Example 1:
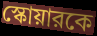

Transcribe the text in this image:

স্কোয়ারকে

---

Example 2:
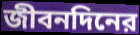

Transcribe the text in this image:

জীবনদিনের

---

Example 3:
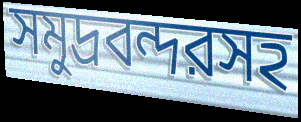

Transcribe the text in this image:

সমুদ্রবন্দরসহ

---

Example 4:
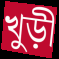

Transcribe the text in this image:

খুড়ী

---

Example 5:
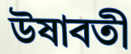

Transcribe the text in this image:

উষাবতী